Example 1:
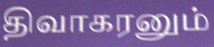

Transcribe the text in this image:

திவாகரனும்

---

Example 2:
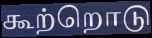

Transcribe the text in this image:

கூற்றொடு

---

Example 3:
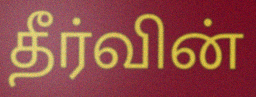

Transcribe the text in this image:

தீர்வின்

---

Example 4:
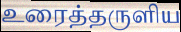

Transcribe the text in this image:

உரைத்தருளிய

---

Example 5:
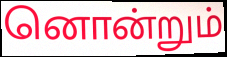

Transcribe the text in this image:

னொன்றும்